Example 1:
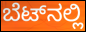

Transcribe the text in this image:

ಬೆಟ್‌ನಲ್ಲಿ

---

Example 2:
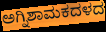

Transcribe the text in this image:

ಅಗ್ನಿಶಾಮಕದಳದ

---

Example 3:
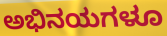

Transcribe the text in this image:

ಅಭಿನಯಗಳೂ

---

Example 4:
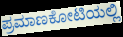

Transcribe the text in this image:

ಪ್ರಮಾಣಕೋಟಿಯಲ್ಲಿ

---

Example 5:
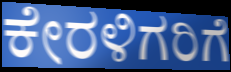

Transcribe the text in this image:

ಕೇರಳಿಗರಿಗೆ